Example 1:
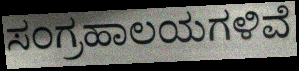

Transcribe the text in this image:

ಸಂಗ್ರಹಾಲಯಗಳಿವೆ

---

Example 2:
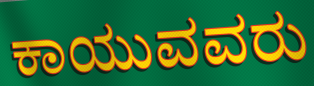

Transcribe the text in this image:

ಕಾಯುವವರು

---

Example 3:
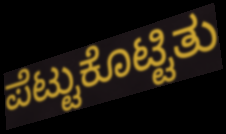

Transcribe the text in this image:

ಪೆಟ್ಟುಕೊಟ್ಟಿತು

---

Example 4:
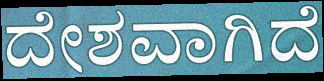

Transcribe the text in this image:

ದೇಶವಾಗಿದೆ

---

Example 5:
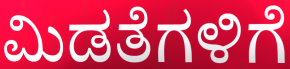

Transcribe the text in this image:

ಮಿಡತೆಗಳಿಗೆ